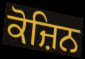
ਕੋਜ਼ਿਨ